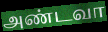
அண்டவா